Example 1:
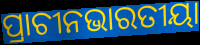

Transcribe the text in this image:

ପ୍ରାଚୀନଭାରତୀୟା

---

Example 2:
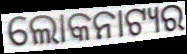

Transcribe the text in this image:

ଲୋକନାଟ୍ୟର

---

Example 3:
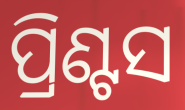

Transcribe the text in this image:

ପ୍ରିଣ୍ଟସ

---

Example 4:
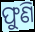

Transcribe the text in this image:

ଫୁଣି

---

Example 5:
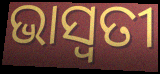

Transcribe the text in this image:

ଭାସ୍ବତୀ